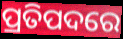
ପ୍ରତିପଦରେ